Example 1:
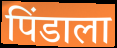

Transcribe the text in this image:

पिंडाला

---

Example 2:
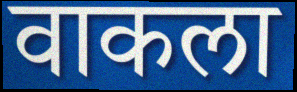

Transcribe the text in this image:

वाकला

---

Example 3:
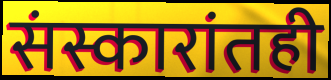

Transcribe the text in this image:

संस्कारांतही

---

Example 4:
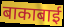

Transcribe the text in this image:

बाकाबाई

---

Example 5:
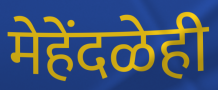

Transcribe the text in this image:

मेहेंदळेही